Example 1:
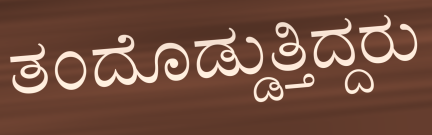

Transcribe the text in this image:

ತಂದೊಡ್ಡುತ್ತಿದ್ದರು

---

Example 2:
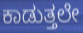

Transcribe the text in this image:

ಕಾಡುತ್ತಲೇ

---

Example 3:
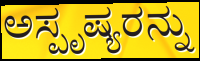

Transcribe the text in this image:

ಅಸ್ಪೃಷ್ಯರನ್ನು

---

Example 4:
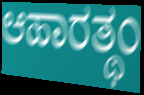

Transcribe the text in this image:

ಆಹಾರತ್ಥಂ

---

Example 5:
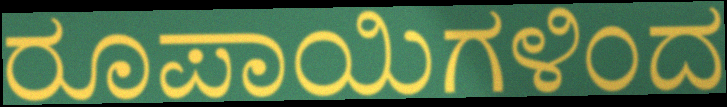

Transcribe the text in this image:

ರೂಪಾಯಿಗಳಿಂದ